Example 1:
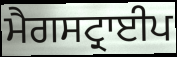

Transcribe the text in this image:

ਮੈਗਸਟ੍ਰਾਈਪ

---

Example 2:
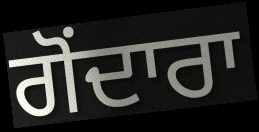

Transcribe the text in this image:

ਗੋਂਦਾਰਾ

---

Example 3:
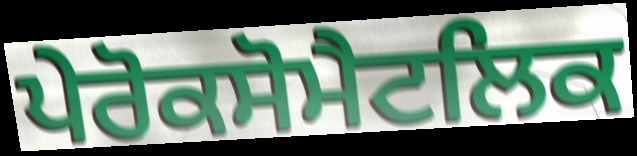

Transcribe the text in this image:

ਪੇਰੋਕਸੋਮੈਟਲਿਕ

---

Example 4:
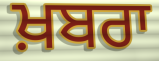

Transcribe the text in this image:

ਖ਼ਬਰਾ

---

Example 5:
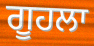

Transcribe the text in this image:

ਗੂਹਲਾ